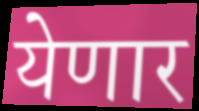
येणार